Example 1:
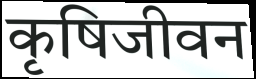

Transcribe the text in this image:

कृषिजीवन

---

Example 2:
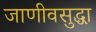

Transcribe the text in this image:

जाणीवसुद्धा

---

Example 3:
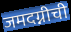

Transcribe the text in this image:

जमदग्नीची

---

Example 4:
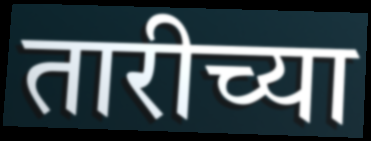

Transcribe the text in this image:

तारीच्या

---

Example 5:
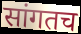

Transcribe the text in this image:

सांगतच